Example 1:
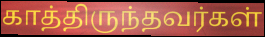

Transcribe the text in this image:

காத்திருந்தவர்கள்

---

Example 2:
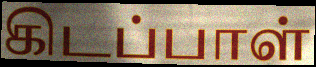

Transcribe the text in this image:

கிடப்பாள்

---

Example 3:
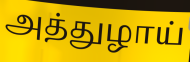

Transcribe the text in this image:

அத்துழாய்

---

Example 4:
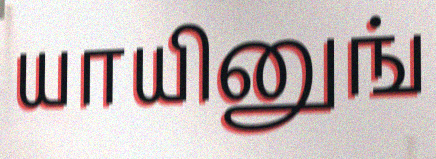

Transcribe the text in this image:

யாயினுங்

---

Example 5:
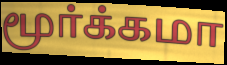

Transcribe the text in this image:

மூர்க்கமா